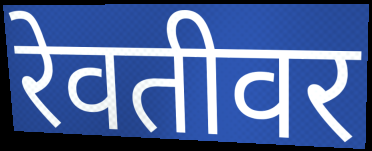
रेवतीवर